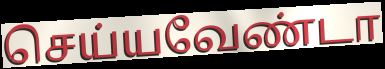
செய்யவேண்டா